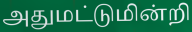
அதுமட்டுமின்றி